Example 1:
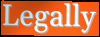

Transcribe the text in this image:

Legally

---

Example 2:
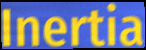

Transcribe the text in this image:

Inertia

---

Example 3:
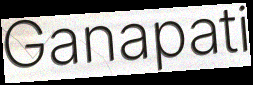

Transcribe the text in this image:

Ganapati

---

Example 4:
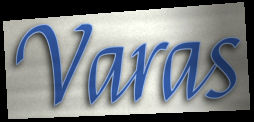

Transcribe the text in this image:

Varas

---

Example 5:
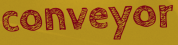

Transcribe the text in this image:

conveyor